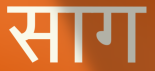
साग